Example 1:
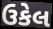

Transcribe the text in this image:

ઉકેલ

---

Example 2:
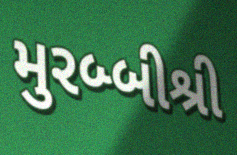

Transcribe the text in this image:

મુરબ્બીશ્રી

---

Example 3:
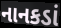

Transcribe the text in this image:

નાનકડાં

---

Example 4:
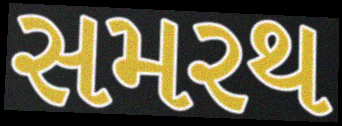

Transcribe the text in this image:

સમરથ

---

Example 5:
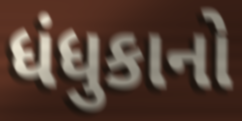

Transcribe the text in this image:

ધંધુકાનો